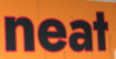
neat